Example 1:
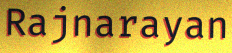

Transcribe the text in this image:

Rajnarayan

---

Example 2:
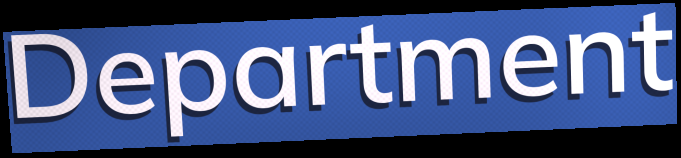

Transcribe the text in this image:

Department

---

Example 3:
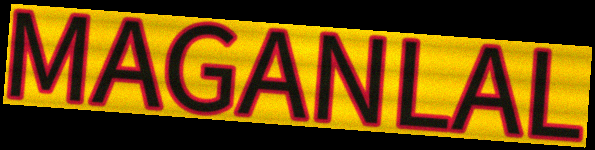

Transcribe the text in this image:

MAGANLAL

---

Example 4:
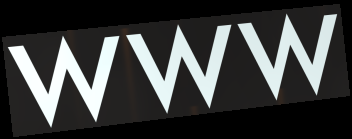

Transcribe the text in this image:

www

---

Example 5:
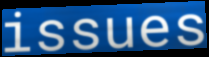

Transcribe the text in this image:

issues